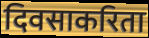
दिवसाकरिता